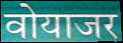
वोयाजर